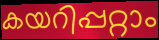
കയറിപ്പറ്റാം